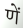
णें